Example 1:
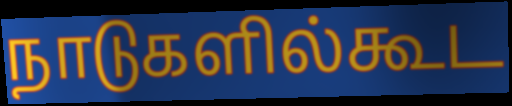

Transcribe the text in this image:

நாடுகளில்கூட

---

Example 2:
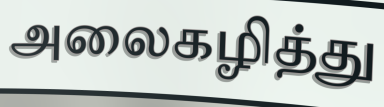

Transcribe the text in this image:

அலைகழித்து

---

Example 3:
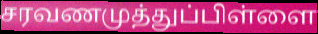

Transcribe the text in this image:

சரவணமுத்துப்பிள்ளை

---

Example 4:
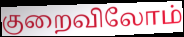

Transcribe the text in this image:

குறைவிலோம்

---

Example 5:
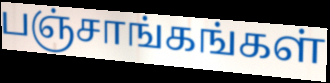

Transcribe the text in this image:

பஞ்சாங்கங்கள்